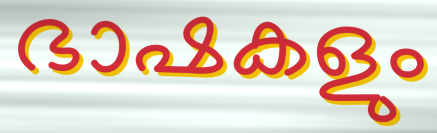
ഭാഷകളും